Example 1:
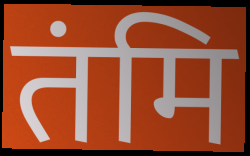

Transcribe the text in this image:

तंमि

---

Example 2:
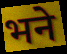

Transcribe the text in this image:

भने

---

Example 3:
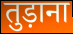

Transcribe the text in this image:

तुड़ाना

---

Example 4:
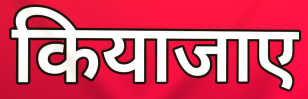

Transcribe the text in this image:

कियाजाए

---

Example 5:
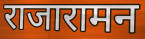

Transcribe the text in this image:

राजारामन